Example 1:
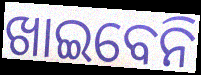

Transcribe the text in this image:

ଖାଇବେନି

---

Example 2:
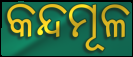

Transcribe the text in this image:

କନ୍ଦମୂଳ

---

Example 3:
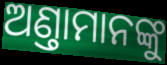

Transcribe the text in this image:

ଅଣ୍ତାମାନଙ୍କୁ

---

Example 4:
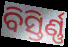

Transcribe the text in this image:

ବିସ୍ତିର୍ଣ୍ଣ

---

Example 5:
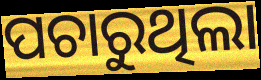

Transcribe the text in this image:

ପଚାରୁଥିଲା